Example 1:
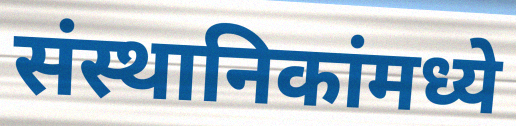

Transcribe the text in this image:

संस्थानिकांमध्ये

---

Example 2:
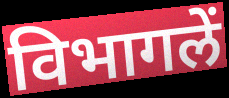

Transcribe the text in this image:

विभागलें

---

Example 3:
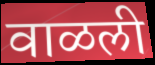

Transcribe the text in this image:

वाळली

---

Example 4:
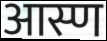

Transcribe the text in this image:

आस्ण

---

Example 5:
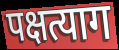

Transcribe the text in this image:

पक्षत्याग